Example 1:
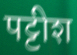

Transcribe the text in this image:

पट्टीश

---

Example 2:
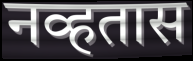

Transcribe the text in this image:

नव्हतास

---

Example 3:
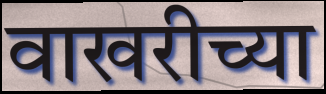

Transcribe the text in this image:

वाखरीच्या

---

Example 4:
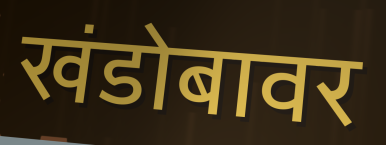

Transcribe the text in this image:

खंडोबावर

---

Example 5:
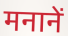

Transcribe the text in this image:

मनानें